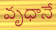
వృధానే